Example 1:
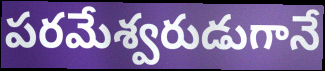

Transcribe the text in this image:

పరమేశ్వరుడుగానే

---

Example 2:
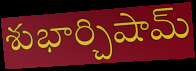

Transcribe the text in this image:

శుభార్చిషామ్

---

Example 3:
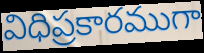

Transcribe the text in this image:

విధిప్రకారముగా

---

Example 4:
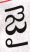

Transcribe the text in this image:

జై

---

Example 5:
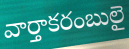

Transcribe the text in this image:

వార్తాకరంబులై